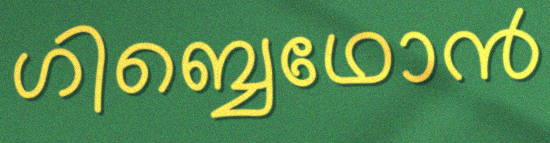
ഗിബ്ബെഥോൻ